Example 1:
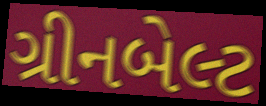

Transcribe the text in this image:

ગ્રીનબેલ્ટ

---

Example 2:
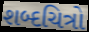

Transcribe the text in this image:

શબ્દચિત્રો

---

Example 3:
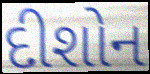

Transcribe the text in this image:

દીશોન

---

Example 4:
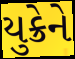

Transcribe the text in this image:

યુક્રેને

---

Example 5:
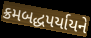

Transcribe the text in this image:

ક્રમબદ્ધપર્યાયને